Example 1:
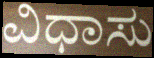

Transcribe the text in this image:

ವಿಧಾಸು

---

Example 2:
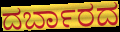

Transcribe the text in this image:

ದರ್ಬಾರದ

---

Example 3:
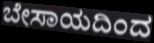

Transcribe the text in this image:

ಬೇಸಾಯದಿಂದ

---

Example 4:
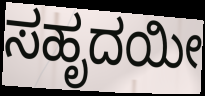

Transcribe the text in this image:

ಸಹೃದಯೀ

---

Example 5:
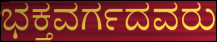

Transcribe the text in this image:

ಭಕ್ತವರ್ಗದವರು